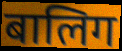
बालिग